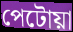
পেটোয়া